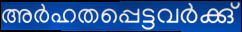
അർഹതപ്പെട്ടവർക്കു്